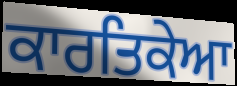
ਕਾਰਤਿਕੇਆ